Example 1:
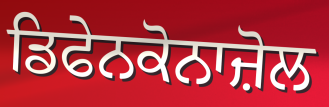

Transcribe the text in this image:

ਡਿਫੇਨਕੋਨਾਜ਼ੋਲ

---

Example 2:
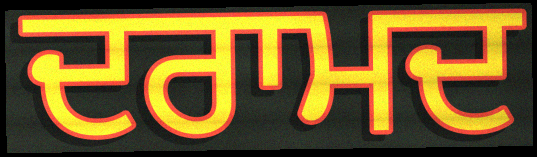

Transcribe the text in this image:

ਦਰਾਮਦ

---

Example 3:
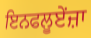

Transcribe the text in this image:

ਇਨਫਲੂਏਂਜ਼ਾ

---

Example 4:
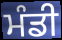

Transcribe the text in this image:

ਮੰਡੀ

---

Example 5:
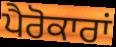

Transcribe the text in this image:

ਪੈਰੋਕਾਰਾਂ